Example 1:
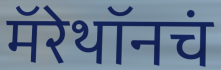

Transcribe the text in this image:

मॅरेथॉनचं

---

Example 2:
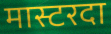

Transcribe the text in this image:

मास्टरदा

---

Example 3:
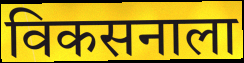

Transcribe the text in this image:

विकसनाला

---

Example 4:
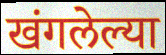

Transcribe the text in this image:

खंगलेल्या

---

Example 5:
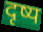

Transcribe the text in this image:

दृष्य